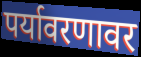
पर्यावरणावर